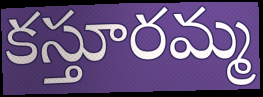
కస్తూరమ్మ